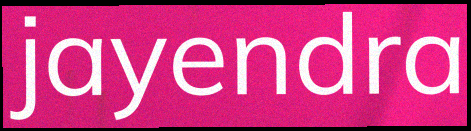
jayendra